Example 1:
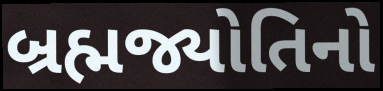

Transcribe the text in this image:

બ્રહ્મજ્યોતિનો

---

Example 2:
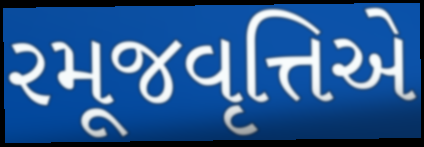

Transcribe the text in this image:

રમૂજવૃત્તિએ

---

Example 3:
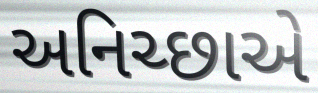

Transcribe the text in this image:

અનિચ્છાએ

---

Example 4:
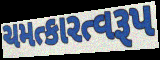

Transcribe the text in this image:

ચમત્કારત્વરૂપ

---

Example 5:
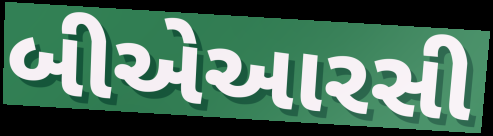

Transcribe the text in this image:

બીએઆરસી